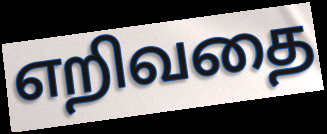
எறிவதை